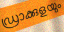
ഡ്രാക്കുളയും